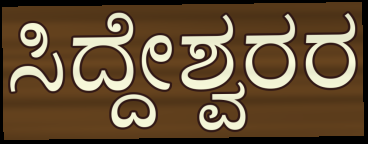
ಸಿದ್ದೇಶ್ವರರ